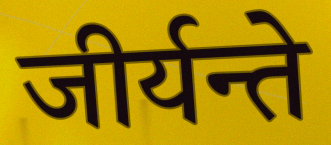
जीर्यन्ते